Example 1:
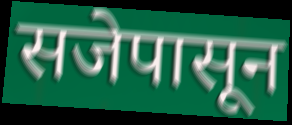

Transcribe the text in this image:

सजेपासून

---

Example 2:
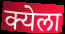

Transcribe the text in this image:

क्येला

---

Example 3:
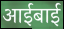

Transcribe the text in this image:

आईबाई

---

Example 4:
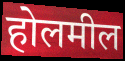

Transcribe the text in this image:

होलमील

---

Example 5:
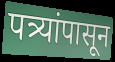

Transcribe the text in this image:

पत्र्यांपासून